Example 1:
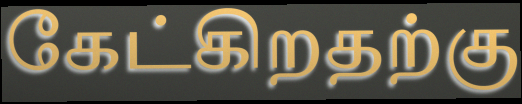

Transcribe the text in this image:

கேட்கிறதற்கு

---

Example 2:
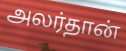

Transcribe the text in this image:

அலர்தான்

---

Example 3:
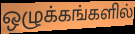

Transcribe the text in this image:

ஒழுக்கங்களில்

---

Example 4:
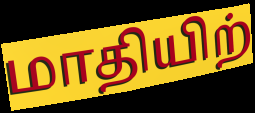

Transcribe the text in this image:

மாதியிற்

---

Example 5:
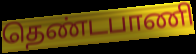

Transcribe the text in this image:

தெண்டபாணி